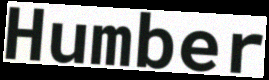
Humber